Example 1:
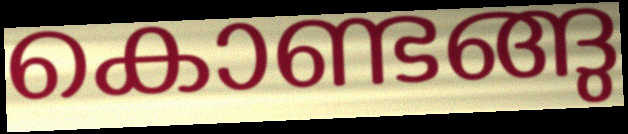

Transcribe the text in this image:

കൊണ്ടങ്ങു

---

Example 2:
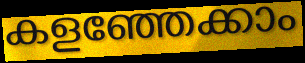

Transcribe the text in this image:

കളഞ്ഞേക്കാം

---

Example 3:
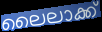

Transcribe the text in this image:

ലൈലാക്ക്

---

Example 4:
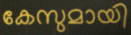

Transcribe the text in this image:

കേസുമായി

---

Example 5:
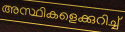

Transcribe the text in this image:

അസ്ഥികളെക്കുറിച്ച്